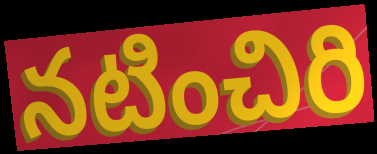
నటించిరి